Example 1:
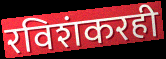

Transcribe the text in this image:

रविशंकरही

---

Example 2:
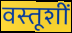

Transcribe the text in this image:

वस्तूशीं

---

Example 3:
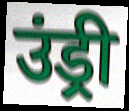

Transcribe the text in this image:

उंड्री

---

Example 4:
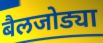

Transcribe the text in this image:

बैलजोड्या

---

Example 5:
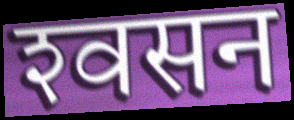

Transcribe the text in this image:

श्वसन